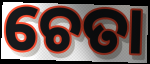
ଚେତା